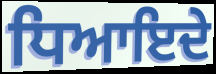
ਧਿਆਇਦੇ